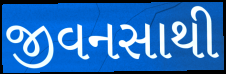
જીવનસાથી